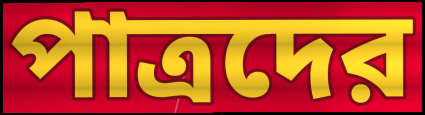
পাত্রদের